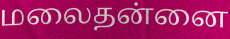
மலைதன்னை